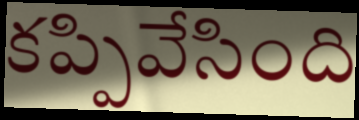
కప్పివేసింది